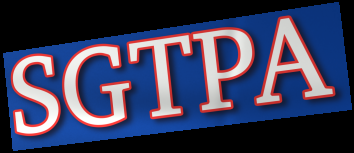
SGTPA